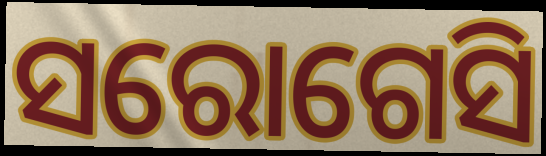
ସରୋଗେସି